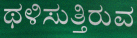
ಥಳಿಸುತ್ತಿರುವ